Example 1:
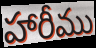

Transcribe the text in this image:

హారీము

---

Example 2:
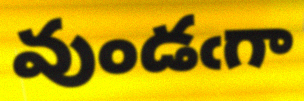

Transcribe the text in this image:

వుండఁగా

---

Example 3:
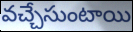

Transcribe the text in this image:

వచ్చేసుంటాయి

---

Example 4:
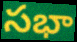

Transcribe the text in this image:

సభా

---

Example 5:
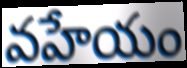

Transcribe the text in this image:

వహేయం